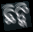
ଛିଙ୍କି